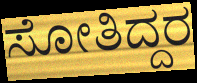
ಸೋತಿದ್ದರ